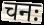
चनः